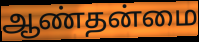
ஆண்தன்மை